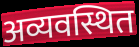
अव्यवस्थित